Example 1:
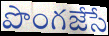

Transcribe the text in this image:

పొంగజేసే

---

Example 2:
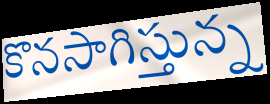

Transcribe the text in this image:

కొనసాగిస్తున్న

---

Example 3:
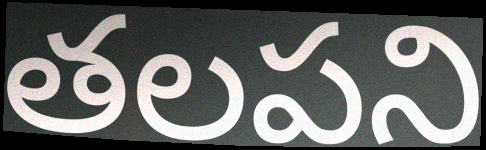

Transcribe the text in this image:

తలపని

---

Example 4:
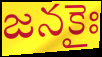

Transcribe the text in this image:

జనకైః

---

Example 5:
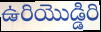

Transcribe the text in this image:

ఉరియొడ్డిరి